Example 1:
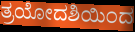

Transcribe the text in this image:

ತ್ರಯೋದಶಿಯಿಂದ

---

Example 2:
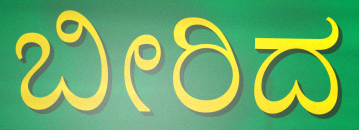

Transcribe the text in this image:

ಬೀರಿದ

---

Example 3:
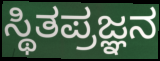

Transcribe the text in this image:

ಸ್ಥಿತಪ್ರಜ್ಞನ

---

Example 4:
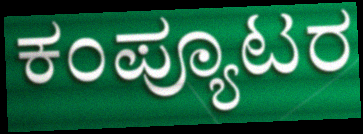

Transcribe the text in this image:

ಕಂಪ್ಯೂಟರ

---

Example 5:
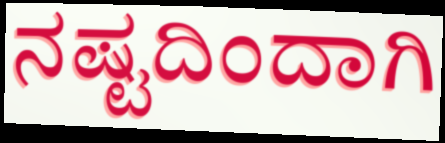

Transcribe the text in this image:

ನಷ್ಟದಿಂದಾಗಿ